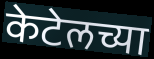
केटेलच्या